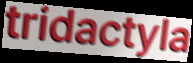
tridactyla